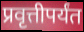
प्रवृत्तीपर्यंत